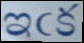
ఇఁక